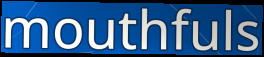
mouthfuls